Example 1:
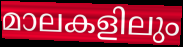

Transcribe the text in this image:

മാലകളിലും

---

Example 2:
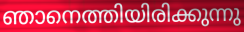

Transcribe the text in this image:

ഞാനെത്തിയിരിക്കുന്നു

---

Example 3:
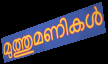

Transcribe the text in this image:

മുത്തുമണികൾ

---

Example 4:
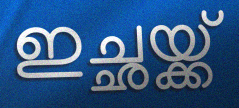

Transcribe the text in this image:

ഇച്ഛയ്ക്ക്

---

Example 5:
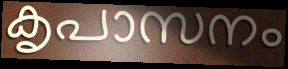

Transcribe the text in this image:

കൃപാസനം